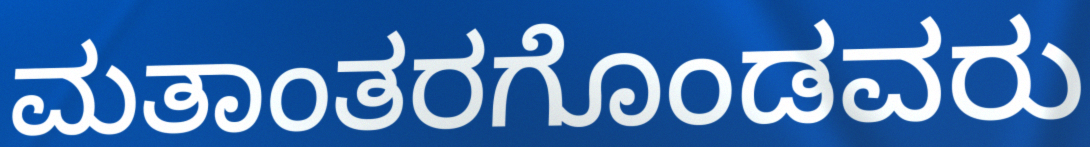
ಮತಾಂತರಗೊಂಡವರು